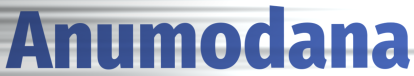
Anumodana